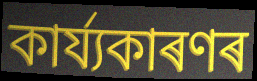
কাৰ্য্যকাৰণৰ